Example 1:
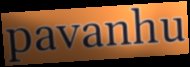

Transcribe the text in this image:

pavanhu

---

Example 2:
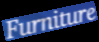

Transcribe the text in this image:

Furniture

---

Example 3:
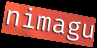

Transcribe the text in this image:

nimagu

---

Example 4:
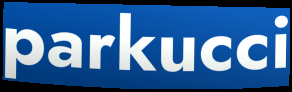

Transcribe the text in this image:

parkucci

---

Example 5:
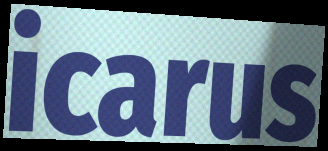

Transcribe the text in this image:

icarus